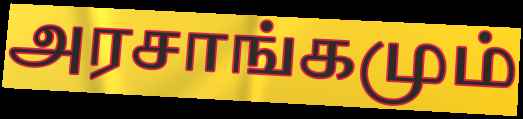
அரசாங்கமும்